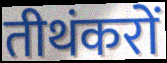
तीथंकरों